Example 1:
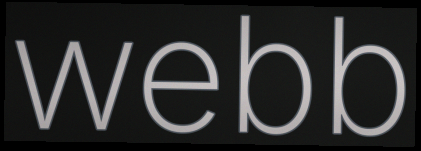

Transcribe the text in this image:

webb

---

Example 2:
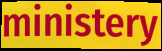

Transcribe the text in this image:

ministery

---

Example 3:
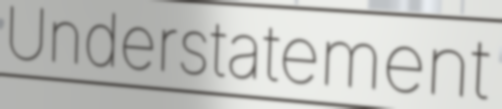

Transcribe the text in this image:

Understatement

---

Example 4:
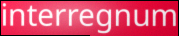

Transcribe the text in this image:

interregnum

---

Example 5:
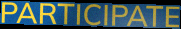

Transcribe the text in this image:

PARTICIPATE